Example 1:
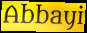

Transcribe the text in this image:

Abbayi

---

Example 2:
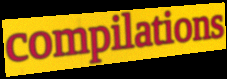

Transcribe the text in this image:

compilations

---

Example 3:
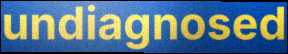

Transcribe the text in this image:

undiagnosed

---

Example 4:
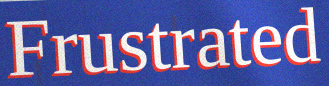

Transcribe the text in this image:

Frustrated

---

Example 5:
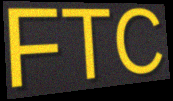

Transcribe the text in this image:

FTC